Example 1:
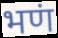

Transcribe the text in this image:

भणं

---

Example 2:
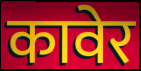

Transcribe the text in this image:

कावेर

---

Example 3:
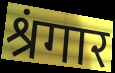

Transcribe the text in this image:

श्रंगार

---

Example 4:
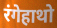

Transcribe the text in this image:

रंगेहाथो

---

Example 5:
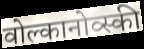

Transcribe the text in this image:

वोल्कानोव्स्की